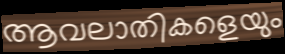
ആവലാതികളെയും